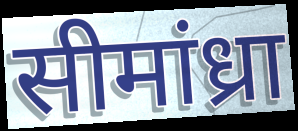
सीमांध्रा